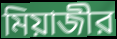
মিয়াজীর